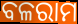
ବଳରାମ